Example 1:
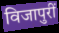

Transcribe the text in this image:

विजापुरीं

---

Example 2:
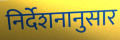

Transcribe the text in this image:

निर्देशनानुसार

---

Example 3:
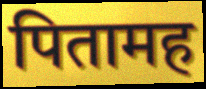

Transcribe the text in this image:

पितामह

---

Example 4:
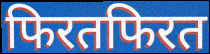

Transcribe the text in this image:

फिरतफिरत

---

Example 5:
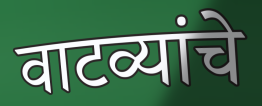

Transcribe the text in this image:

वाटव्यांचे